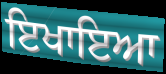
ਇਖਾਇਆ